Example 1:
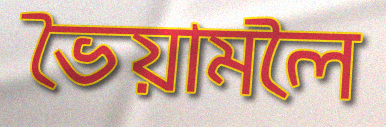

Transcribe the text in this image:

ভৈয়ামলৈ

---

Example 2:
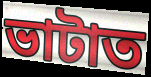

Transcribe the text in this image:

ভাটাত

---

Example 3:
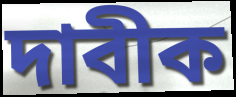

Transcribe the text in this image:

দাবীক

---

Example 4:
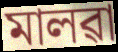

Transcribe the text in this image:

মালৱা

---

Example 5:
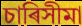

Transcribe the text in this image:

চাৰিসীমা